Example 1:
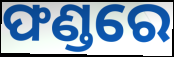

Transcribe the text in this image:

ଫଣ୍ଡରେ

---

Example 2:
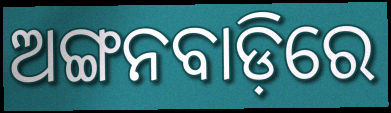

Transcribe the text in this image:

ଅଙ୍ଗନବାଡ଼ିରେ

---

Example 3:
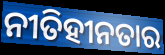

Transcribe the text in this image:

ନୀତିହୀନତାର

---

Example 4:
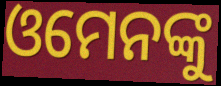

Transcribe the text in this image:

ଓମେନଙ୍କୁ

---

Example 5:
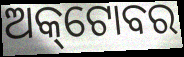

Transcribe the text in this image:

ଅକ୍‌ଟୋବର